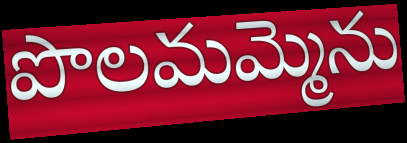
పొలమమ్మెను